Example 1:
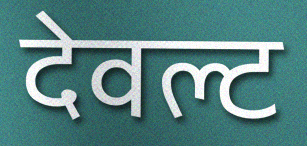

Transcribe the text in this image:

देवल्ट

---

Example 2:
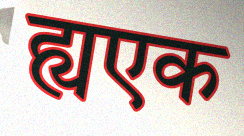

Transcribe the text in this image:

ह्यएक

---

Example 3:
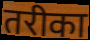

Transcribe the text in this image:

तरीका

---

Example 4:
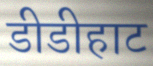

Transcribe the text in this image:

डीडीहाट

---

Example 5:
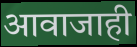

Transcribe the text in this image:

आवाजाही